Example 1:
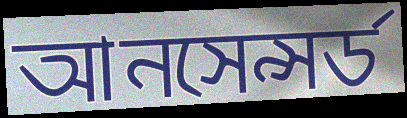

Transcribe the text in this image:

আনসেন্সর্ড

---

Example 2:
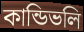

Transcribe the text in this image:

কান্ডিভলি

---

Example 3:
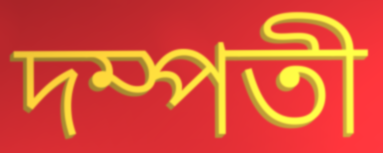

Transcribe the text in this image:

দম্পতী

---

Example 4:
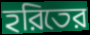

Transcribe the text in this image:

হরিতের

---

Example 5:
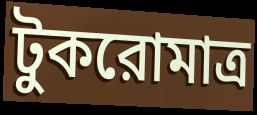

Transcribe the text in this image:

টুকরোমাত্র